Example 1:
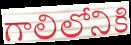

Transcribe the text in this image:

గాలిలోనికి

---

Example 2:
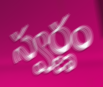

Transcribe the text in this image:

స్వర్ణం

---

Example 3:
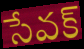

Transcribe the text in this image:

సేవక్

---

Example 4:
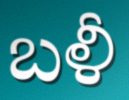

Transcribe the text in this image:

బళీ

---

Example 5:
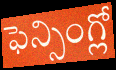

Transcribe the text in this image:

ఫెన్సింగ్లో